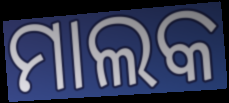
ମାଲକ